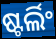
ଷ୍ଟର୍ଲିଂ